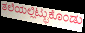
ತಲೆಯಲ್ಲಿಟ್ಟುಕೊಂಡು